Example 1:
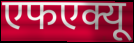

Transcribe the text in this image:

एफएक्यू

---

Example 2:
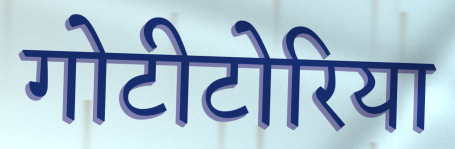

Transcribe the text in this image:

गोटीटोरिया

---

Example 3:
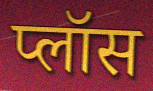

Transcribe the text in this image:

प्लॉस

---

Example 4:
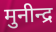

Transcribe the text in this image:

मुनीन्द्र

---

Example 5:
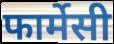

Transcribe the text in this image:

फार्मेसी